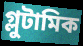
গ্লুটামিক